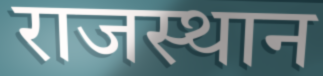
राजस्‍थान